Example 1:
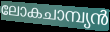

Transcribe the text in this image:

ലോകചാമ്പ്യൻ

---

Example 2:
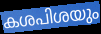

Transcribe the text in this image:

കശപിശയും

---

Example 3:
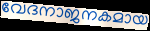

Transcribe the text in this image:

വേദനാജനകമായ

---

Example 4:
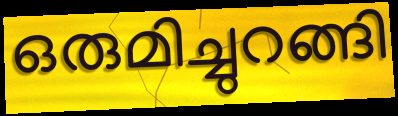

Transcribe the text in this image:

ഒരുമിച്ചുറങ്ങി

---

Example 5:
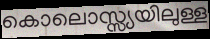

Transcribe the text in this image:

കൊലൊസ്സ്യയിലുള്ള